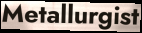
Metallurgist